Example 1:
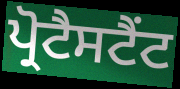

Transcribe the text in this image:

ਪ੍ਰੋਟੈਸਟੈਂਟ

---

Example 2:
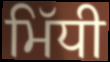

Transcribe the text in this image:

ਮਿੱਧੀ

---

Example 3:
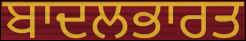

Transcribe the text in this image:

ਬਾਦਲਭਾਰਤ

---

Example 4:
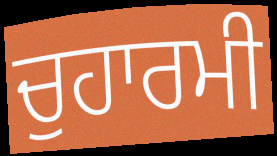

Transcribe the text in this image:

ਚੁਹਾਰਮੀ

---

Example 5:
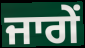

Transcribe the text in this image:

ਜਾਗੇਂ